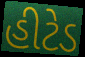
હીટેડ